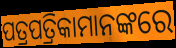
ପତ୍ରପତ୍ରିକାମାନଙ୍କରେ